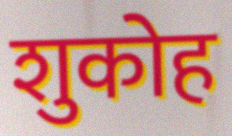
शुकोह